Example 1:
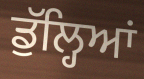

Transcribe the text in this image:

ਡੁੱਲ੍ਹਿਆਂ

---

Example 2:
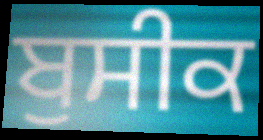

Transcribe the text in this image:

ਬੁਸੀਕ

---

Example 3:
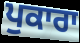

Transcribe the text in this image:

ਪੁਕਾਰਾ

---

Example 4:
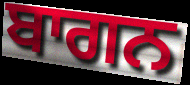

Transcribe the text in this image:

ਬਾਗਨ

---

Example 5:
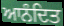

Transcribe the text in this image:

ਆਨੰਦਿਤ